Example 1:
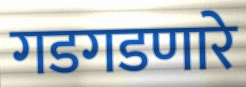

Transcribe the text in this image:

गडगडणारे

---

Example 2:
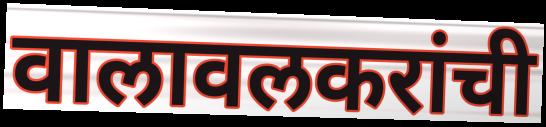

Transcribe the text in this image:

वालावलकरांची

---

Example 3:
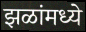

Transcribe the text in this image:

झळांमध्ये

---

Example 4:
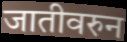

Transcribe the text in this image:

जातीवरुन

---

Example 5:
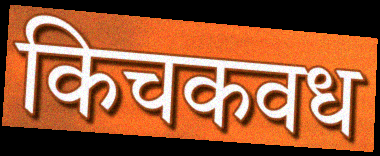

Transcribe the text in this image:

किचकवध